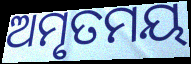
ଅମୃତମୟ